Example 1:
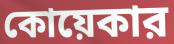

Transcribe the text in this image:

কোয়েকার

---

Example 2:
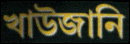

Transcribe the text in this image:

খাউজানি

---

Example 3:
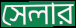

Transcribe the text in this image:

সেলার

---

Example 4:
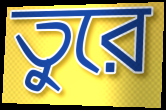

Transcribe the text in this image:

তুরে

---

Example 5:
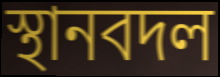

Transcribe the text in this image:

স্থানবদল